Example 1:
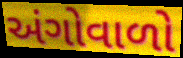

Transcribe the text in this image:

અંગોવાળો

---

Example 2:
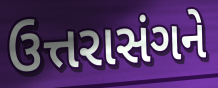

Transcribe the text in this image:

ઉત્તરાસંગને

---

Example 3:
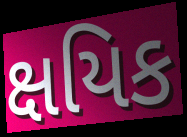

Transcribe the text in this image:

ક્ષયિક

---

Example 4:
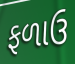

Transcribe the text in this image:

ફળાઉ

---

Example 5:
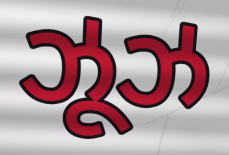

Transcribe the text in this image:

ઝૂઝ